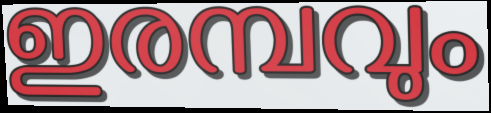
ഇരമ്പവും